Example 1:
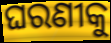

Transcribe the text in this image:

ଘରଣୀକୁ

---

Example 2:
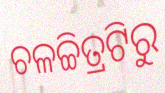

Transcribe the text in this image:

ଚଳଚ୍ଚିତ୍ରଟିରୁ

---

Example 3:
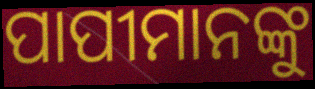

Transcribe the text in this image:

ପାପୀମାନଙ୍କୁ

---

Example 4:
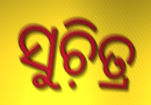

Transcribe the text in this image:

ସୁଚ଼ିତ୍ର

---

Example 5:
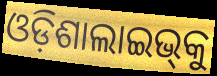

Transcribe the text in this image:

ଓଡ଼ିଶାଲାଇଭ୍‌କୁ